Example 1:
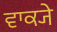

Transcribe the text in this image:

ਵਾਕ੍ਯੇ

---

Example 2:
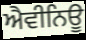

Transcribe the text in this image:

ਐਵੀਨਿਊ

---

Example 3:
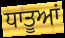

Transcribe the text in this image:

ਧਾਤੂਆਂ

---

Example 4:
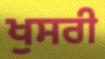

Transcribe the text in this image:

ਖੁਸਰੀ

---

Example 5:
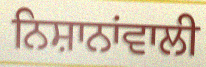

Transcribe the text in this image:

ਨਿਸ਼ਾਨਾਂਵਾਲੀ